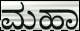
ಮಹಾ